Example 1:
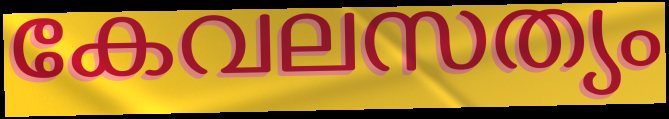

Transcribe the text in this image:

കേവലസത്യം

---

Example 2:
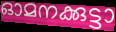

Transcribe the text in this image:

ഓമനക്കുട്ടാ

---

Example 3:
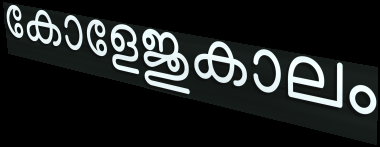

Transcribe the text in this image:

കോളേജുകാലം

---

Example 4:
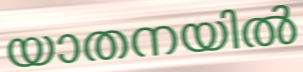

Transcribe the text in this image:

യാതനയിൽ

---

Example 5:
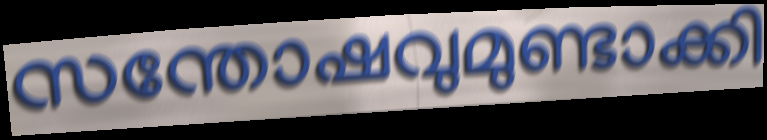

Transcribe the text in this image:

സന്തോഷവുമുണ്ടാക്കി